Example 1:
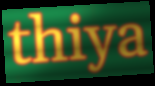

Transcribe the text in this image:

thiya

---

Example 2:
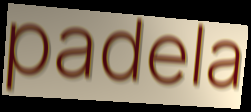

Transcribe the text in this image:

padela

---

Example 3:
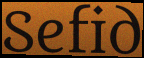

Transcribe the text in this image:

Sefid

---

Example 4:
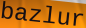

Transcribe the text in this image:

bazlur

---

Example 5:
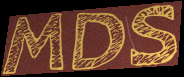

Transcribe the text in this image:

MDS